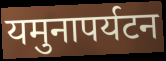
यमुनापर्यटन